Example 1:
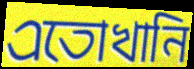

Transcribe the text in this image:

এতোখানি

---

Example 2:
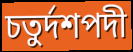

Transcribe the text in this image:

চতুর্দশপদী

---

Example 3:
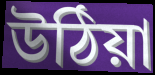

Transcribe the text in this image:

উঠিয়া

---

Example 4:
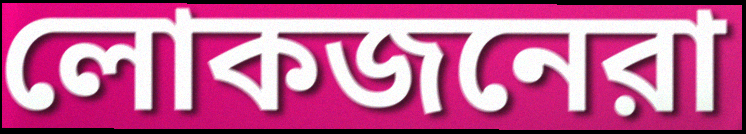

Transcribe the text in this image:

লোকজনেরা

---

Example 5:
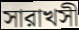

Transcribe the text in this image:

সারাখসী